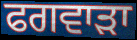
ਫਗਵਾੜਾ